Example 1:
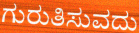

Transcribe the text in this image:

ಗುರುತಿಸುವದು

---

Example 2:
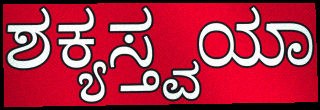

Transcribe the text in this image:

ಶಕ್ಯಸ್ತ್ವಯಾ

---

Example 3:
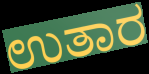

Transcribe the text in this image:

ಉತಾರ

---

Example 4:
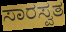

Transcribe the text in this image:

ಸಾರಸ್ವತ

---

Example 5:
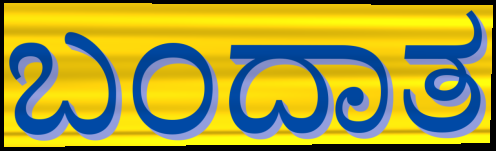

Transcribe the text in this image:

ಬಂದಾತ